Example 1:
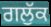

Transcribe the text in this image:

ਗਲੁੱਕ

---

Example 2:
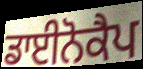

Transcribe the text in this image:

ਡਾਈਨੋਕੈਪ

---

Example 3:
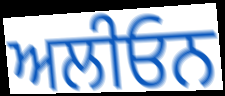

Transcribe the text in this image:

ਅਲੀਓਨ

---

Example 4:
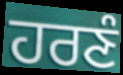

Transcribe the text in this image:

ਹਰਣੰ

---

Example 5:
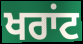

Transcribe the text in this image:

ਖਰਾਂਟ